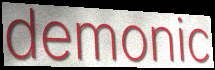
demonic